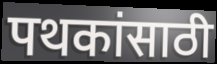
पथकांसाठी